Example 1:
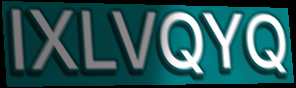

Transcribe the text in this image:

IXLVQYQ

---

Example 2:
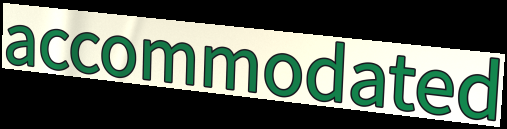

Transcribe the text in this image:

accommodated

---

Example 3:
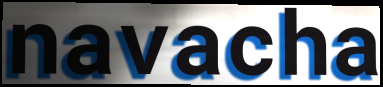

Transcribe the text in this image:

navacha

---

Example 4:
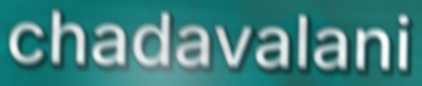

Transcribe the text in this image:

chadavalani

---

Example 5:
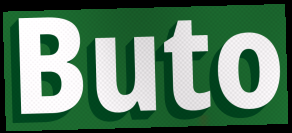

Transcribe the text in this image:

Buto